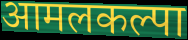
आमलकल्पा